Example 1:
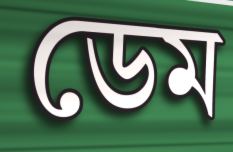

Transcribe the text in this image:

ডেম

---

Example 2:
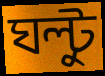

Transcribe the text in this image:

ঘল্টু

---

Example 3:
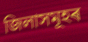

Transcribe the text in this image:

জিলাসমূহৰ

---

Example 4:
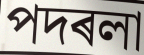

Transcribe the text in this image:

পদৰলা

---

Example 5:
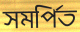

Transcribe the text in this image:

সমৰ্পিত